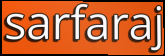
sarfaraj